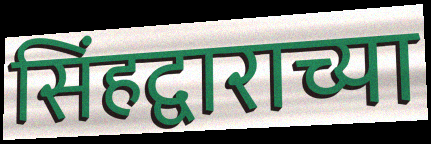
सिंहद्वाराच्या